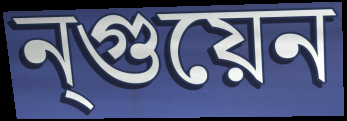
ন্গুয়েন